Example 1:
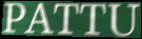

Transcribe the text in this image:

PATTU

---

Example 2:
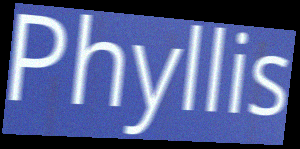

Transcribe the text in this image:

Phyllis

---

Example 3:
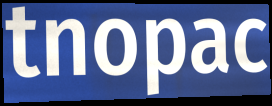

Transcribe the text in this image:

tnopac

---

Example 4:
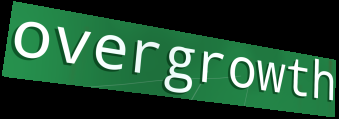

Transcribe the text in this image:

overgrowth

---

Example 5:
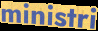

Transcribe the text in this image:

ministri